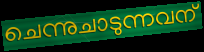
ചെന്നുചാടുന്നവന്